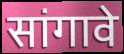
सांगावे